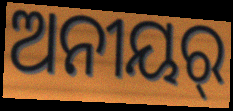
ଅନୀୟର୍